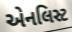
એનલિસ્ટ